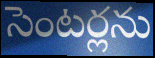
సెంటర్లను